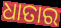
ଧାତାର